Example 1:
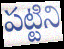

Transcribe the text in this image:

పట్టిని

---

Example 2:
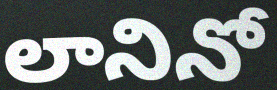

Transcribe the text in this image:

లానినో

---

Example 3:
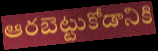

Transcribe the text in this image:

ఆరబెట్టుకోడానికి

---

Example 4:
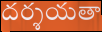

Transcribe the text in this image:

దర్శయతా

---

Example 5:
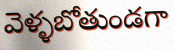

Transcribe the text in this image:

వెళ్ళబోతుండగా